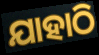
ଯାହାଠି